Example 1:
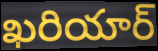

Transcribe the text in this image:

ఖరియార్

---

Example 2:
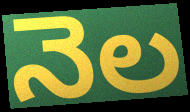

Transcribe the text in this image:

నెల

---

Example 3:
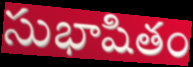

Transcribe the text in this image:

సుభాషితం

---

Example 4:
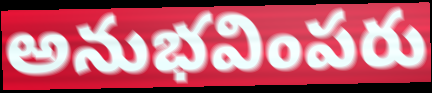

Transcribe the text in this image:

అనుభవింపరు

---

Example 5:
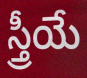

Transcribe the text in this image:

స్త్రీయే